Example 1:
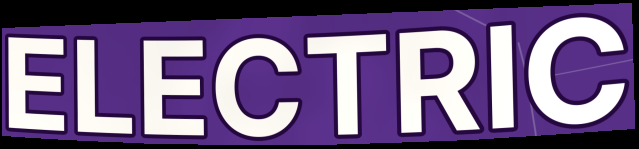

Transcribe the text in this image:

ELECTRIC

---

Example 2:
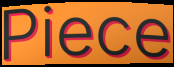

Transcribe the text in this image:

Piece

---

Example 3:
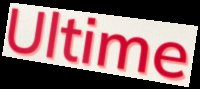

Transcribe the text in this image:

Ultime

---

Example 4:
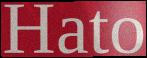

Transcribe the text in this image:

Hato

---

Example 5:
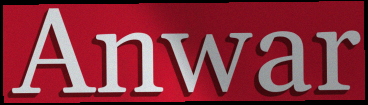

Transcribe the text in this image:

Anwar